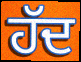
ਹੱਦ